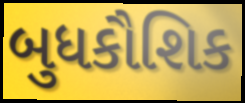
બુધકૌશિક